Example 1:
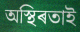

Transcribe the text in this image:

অস্থিৰতাই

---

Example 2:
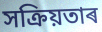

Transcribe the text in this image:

সক্ৰিয়তাৰ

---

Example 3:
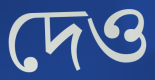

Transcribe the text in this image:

দেও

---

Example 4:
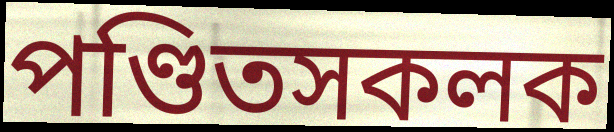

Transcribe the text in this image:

পণ্ডিতসকলক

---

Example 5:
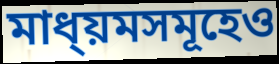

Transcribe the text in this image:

মাধ্য়মসমূহেও